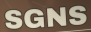
SGNS